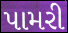
પામરી